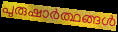
പുരുഷാർത്ഥങ്ങൾ